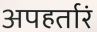
अपहर्तारं